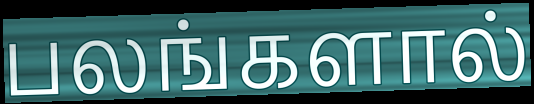
பலங்களால்